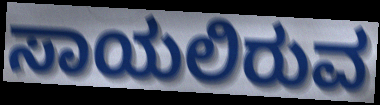
ಸಾಯಲಿರುವ